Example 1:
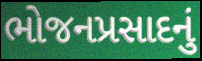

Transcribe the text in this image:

ભોજનપ્રસાદનું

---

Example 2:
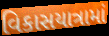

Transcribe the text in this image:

વિકાસયાત્રામાં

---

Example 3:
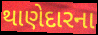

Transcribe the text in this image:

થાણેદારના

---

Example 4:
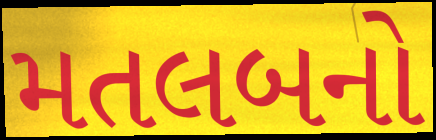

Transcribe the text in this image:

મતલબનો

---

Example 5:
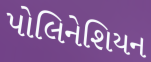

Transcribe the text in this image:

પોલિનેશિયન